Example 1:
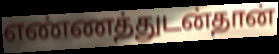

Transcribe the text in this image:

எண்ணத்துடன்தான்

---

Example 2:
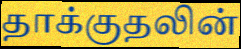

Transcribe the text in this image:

தாக்குதலின்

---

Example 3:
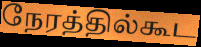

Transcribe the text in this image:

நேரத்தில்கூட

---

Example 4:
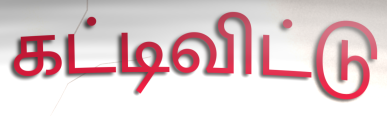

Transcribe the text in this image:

கட்டிவிட்டு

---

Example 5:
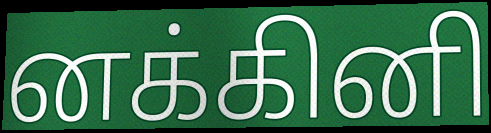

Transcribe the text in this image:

னக்கினி